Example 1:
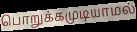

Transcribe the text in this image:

பொறுக்கமுடியாமல்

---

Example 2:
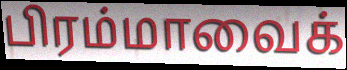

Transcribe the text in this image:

பிரம்மாவைக்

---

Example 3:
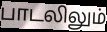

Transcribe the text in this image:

பாடலிலும்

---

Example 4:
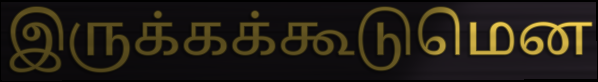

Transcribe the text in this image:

இருக்கக்கூடுமென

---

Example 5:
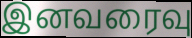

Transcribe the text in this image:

இனவரைவு